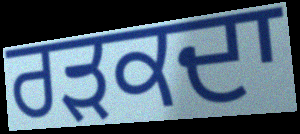
ਰੜਕਦਾ